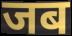
जब